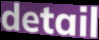
detail